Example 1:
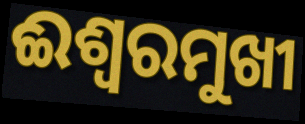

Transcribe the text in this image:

ଈଶ୍ୱରମୁଖୀ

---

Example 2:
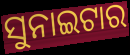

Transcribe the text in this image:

ସୁନାଇଟାର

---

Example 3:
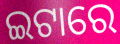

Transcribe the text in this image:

ଇଟାରେ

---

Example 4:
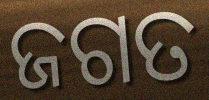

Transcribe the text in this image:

ଜଗତ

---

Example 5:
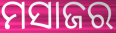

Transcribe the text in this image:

ମସାଜର